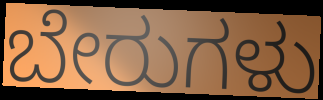
ಬೇರುಗಳು